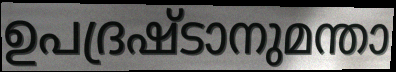
ഉപദ്രഷ്ടാനുമന്താ